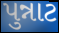
પુન્નાટ